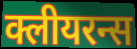
क्लीयरन्स